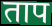
ताप